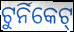
ଟୁର୍ନିକେଟ୍